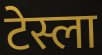
टेस्ला